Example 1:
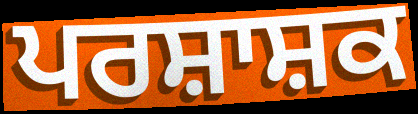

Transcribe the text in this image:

ਪਰਸ਼ਾਸ਼ਕ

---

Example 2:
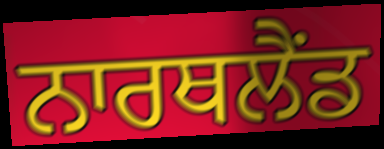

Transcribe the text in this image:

ਨਾਰਥਲੈਂਡ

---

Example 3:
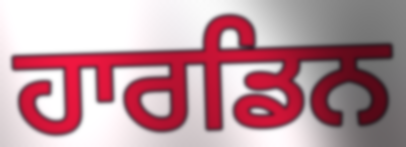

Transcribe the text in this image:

ਹਾਰਡਿਨ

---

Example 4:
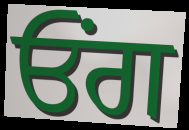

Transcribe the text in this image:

ਓਂਗ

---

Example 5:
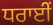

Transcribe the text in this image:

ਧਰਾਈਂ